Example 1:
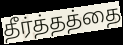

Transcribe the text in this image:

தீர்த்தத்தை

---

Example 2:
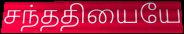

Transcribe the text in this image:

சந்ததியையே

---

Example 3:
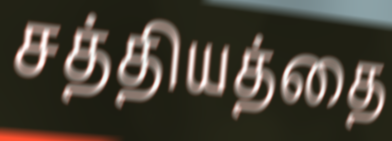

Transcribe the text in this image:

சத்தியத்தை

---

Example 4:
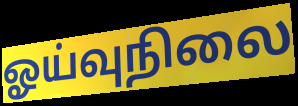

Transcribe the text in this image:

ஓய்வுநிலை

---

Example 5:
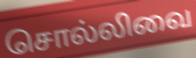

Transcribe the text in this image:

சொல்லிவை